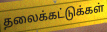
தலைக்கட்டுக்கள்